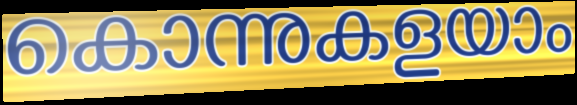
കൊന്നുകളയാം